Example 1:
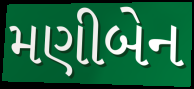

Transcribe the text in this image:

મણીબેન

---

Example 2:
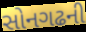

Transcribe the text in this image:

સોનગઢની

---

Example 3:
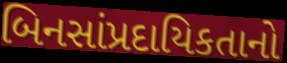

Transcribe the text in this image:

બિનસાંપ્રદાયિકતાનો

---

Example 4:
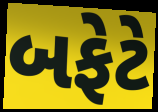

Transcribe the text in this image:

બફેટે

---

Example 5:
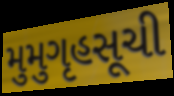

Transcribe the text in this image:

મુમુગૃહસૂચી